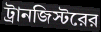
ট্রানজিস্টরের